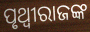
ପୃଥ୍ୱୀରାଜଙ୍କ